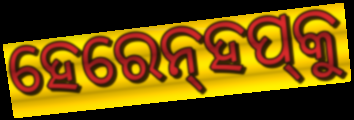
ହେରେନ୍‌ହପ୍‌କୁ